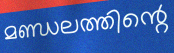
മണ്ഡലത്തിന്റെ